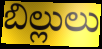
బిల్లులు